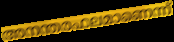
അനന്തരഫലമാണെന്ന്